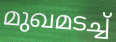
മുഖമടച്ച്